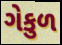
ગેકુળ